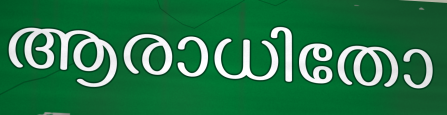
ആരാധിതോ